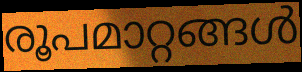
രൂപമാറ്റങ്ങൾ